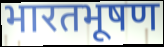
भारतभूषण